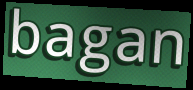
bagan